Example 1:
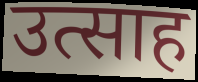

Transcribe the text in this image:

उत्साह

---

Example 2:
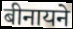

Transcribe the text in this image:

बीनायने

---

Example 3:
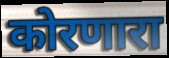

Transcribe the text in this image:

कोरणारा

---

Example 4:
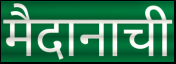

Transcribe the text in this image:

मैदानाची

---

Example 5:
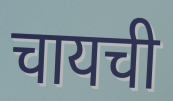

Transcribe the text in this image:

चायची